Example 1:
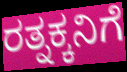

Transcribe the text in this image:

ರತ್ನಕ್ಕನಿಗೆ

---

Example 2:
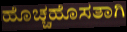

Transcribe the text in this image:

ಹೊಚ್ಚಹೊಸತಾಗಿ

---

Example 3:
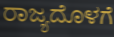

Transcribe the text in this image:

ರಾಜ್ಯದೊಳಗೆ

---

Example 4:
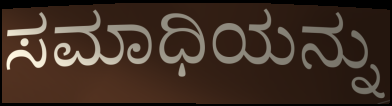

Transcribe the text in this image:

ಸಮಾಧಿಯನ್ನು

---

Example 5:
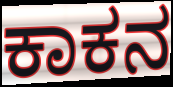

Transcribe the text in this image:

ಕಾಕನ